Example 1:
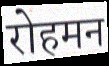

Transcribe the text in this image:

रोहमन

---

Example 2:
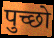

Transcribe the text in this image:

पुच्छो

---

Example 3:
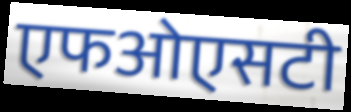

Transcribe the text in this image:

एफओएसटी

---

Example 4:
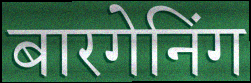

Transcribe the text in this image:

बारगेनिंग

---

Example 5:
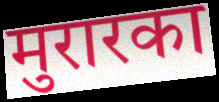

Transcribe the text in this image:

मुरारका